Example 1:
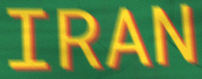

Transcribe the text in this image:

IRAN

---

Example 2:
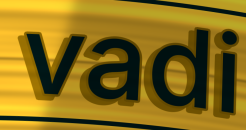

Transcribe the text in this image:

vadi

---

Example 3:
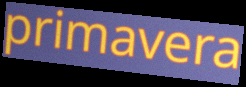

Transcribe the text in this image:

primavera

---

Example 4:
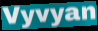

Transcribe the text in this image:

Vyvyan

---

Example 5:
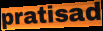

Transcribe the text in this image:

pratisad